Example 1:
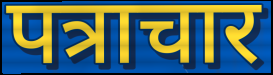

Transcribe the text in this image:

पत्राचार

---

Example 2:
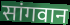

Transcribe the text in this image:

सांगवान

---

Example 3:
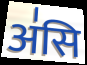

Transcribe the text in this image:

अ॑सि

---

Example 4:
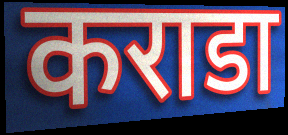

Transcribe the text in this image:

कराडा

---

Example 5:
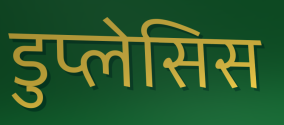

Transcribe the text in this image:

डुप्लेसिस